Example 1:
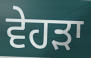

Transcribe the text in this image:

ਵੇਹੜਾ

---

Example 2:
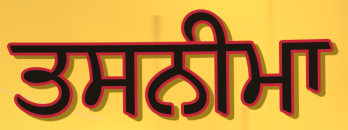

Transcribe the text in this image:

ਤਸਨੀਮਾ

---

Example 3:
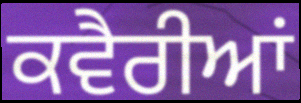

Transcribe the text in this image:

ਕਵੈਰੀਆਂ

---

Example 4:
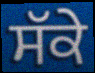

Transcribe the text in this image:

ਸੱਕੇ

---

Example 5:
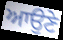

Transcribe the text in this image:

ਆਉਣੇ